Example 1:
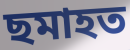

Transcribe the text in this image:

ছমাহত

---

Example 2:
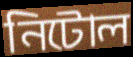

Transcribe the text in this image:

নিটোল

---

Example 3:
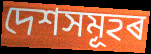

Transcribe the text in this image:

দেশসমূহৰ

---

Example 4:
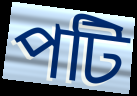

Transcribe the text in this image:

পটি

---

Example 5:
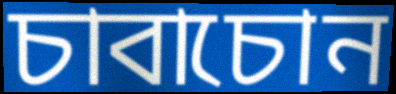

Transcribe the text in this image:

চাবাচোন